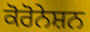
ਕੋਰੋਨੇਸ਼ਨ